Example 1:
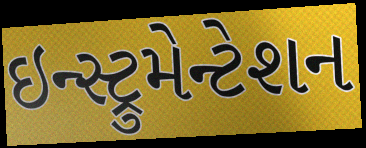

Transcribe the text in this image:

ઇન્સ્ટ્રુમેન્ટેશન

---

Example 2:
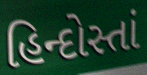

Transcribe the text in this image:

હિન્દોસ્તાં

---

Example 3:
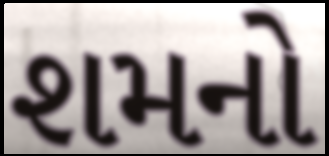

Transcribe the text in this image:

શમનો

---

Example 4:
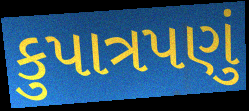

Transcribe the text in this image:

કુપાત્રપણું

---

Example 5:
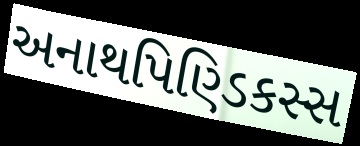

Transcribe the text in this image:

અનાથપિણ્ડિકસ્સ